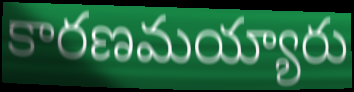
కారణమయ్యారు